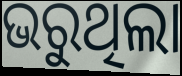
ଭରୁଥିଲା